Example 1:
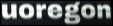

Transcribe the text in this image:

uoregon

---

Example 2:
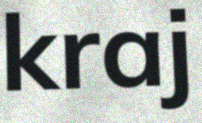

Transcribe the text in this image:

kraj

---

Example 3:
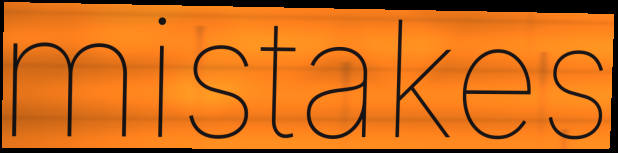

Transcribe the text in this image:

mistakes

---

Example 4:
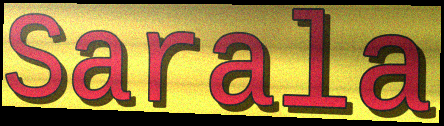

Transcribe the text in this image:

Sarala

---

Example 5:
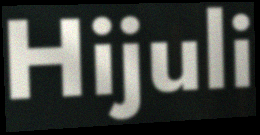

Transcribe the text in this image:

Hijuli